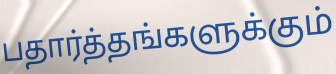
பதார்த்தங்களுக்கும்